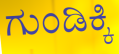
ಗುಂಡಿಕ್ಕಿ